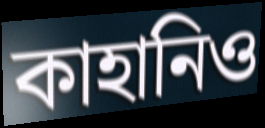
কাহানিও